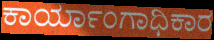
ಕಾರ್ಯಾಂಗಾಧಿಕಾರ